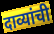
दाव्यांची